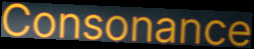
Consonance